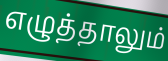
எழுத்தாலும்